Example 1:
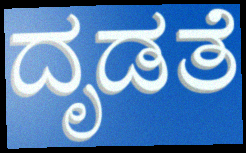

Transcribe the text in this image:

ದೃಡತೆ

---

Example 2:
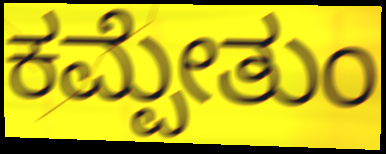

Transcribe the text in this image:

ಕಮ್ಪೇತುಂ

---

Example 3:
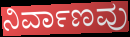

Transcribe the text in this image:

ನಿರ್ವಾಣವು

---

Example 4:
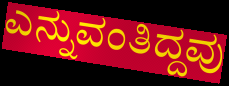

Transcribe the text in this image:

ಎನ್ನುವಂತಿದ್ದವು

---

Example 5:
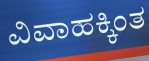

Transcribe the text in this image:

ವಿವಾಹಕ್ಕಿಂತ